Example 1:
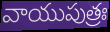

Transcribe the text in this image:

వాయుపుత్రః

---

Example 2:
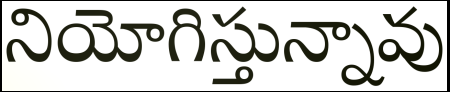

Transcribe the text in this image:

నియోగిస్తున్నావు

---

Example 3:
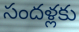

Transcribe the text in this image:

సందళ్లకు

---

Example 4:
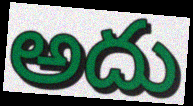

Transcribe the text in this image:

అదు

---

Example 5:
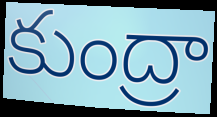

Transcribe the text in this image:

కుంద్రా